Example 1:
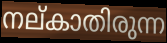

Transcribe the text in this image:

നല്കാതിരുന്ന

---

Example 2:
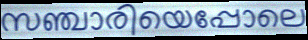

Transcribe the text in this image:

സഞ്ചാരിയെപ്പോലെ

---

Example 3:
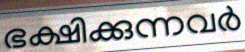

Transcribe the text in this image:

ഭക്ഷിക്കുന്നവർ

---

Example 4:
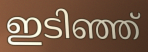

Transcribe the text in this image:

ഇടിഞ്ഞ്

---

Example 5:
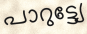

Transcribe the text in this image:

പാറുട്ട്യേ